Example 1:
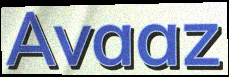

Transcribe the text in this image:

Avaaz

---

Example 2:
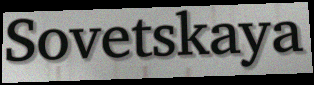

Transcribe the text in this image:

Sovetskaya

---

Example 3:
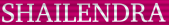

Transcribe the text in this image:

SHAILENDRA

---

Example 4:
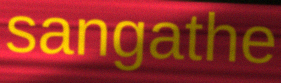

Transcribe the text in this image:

sangathe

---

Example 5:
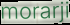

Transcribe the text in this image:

morarji